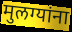
मुलग्यांना